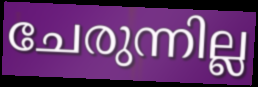
ചേരുന്നില്ല